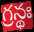
గ్రన్థః